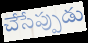
చేసేప్పుడు